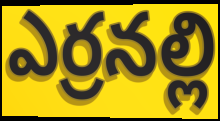
ఎర్రనల్లి